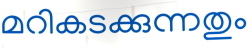
മറികടക്കുന്നതും